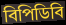
বিপিডিবি